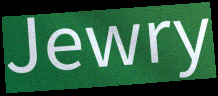
Jewry